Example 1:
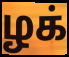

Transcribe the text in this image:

ழக்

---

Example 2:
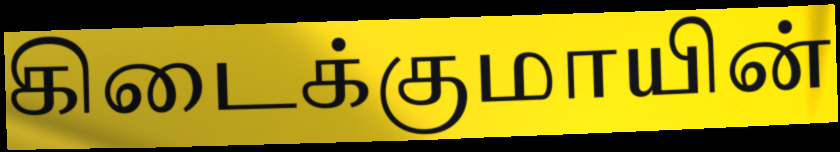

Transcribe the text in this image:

கிடைக்குமாயின்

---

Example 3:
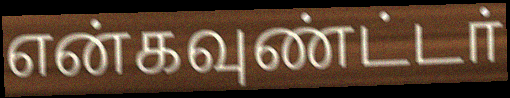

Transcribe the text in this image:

என்கவுண்ட்டர்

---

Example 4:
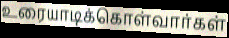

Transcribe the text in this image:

உரையாடிக்கொள்வார்கள்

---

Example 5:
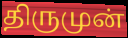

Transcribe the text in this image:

திருமுன்